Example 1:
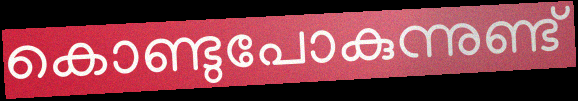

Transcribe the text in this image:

കൊണ്ടുപോകുന്നുണ്ട്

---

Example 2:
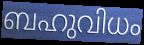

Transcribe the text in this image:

ബഹുവിധം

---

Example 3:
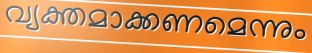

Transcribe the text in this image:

വ്യക്തമാക്കണമെന്നും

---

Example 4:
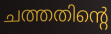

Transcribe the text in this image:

ചത്തതിന്റെ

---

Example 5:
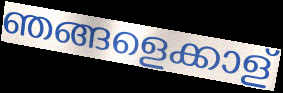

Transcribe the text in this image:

ഞങ്ങളെക്കാള്